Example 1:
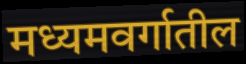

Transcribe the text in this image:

मध्यमवर्गातील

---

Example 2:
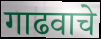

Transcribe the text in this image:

गाढवाचे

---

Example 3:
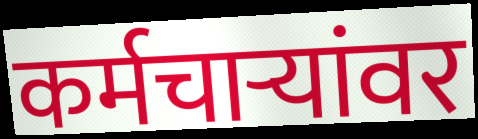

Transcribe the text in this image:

कर्मचार्‍यांवर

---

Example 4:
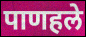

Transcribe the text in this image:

पाणहले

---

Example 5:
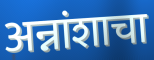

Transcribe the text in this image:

अन्नांशाचा